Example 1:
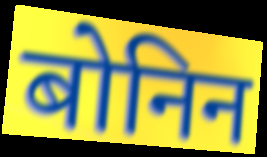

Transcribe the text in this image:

बोनिन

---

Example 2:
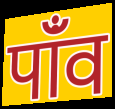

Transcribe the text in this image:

पांँव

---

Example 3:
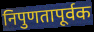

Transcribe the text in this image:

निपुणतापूर्वक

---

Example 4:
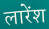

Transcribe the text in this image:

लारेंश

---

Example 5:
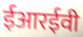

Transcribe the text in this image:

ईआरईवी